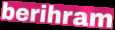
berihram